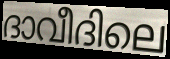
ദാവീദിലെ